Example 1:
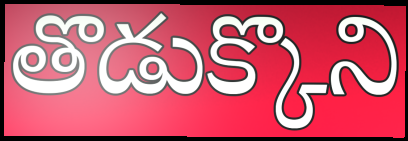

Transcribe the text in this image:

తొడుక్కొని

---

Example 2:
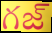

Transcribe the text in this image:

గజ్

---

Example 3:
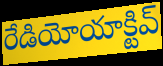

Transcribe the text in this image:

రేడియోయాక్టివ్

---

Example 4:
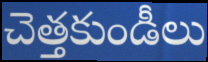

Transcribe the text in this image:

చెత్తకుండీలు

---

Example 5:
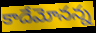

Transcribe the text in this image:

కాదేమోనన్న